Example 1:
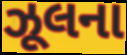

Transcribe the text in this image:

ઝૂલના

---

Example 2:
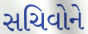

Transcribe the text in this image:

સચિવોને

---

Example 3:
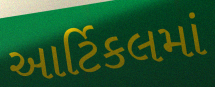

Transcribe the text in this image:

આર્ટિકલમાં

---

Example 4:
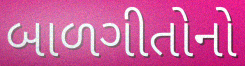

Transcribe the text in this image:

બાળગીતોનો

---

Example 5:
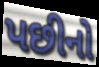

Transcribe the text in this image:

પછીનો